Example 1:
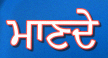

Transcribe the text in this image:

ਮਾਣਦੇ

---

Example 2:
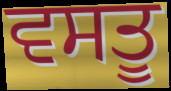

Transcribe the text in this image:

ਵਸਤੂ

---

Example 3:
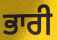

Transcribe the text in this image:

ਭਾਰੀ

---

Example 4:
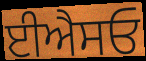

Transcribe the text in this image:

ਈਐਸਓ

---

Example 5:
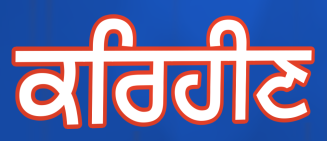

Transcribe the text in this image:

ਕਰਿਹੀਣ